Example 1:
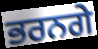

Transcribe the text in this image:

ਭਰਨਗੇ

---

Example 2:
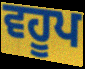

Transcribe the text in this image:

ਵਹੂਪ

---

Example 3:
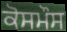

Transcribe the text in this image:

ਕੋਸਮੌਸ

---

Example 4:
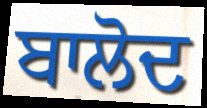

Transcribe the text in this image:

ਬਾਲੋਦ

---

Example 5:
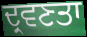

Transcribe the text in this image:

ਦ੍ਰਵਣਤਾ